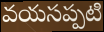
వయసప్పటి